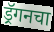
ड्रॅगनचा